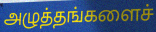
அழுத்தங்களைச்